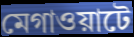
মেগাওয়াটে